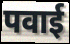
पवाई